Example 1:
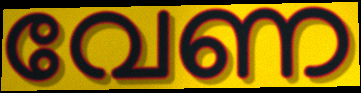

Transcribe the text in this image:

വേണ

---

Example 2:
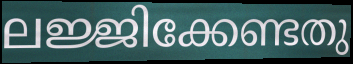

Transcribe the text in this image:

ലജ്ജിക്കേണ്ടതു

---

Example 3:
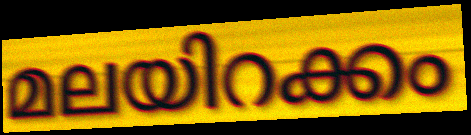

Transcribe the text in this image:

മലയിറക്കം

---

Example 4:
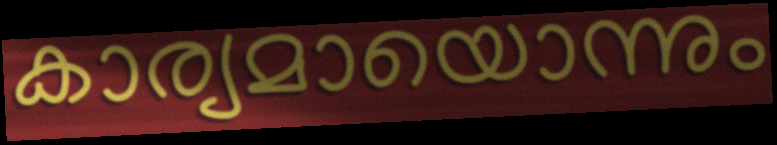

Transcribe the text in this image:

കാര്യമായൊന്നും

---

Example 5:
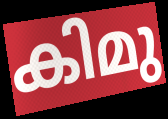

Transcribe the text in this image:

കിമു